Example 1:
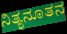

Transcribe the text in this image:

ನಿತ್ಯನೂತನ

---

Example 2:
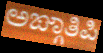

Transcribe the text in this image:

ಅಙ್ಗಾತಿಪಿ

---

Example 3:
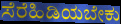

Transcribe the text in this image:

ಸೆರೆಹಿಡಿಯಬೇಕು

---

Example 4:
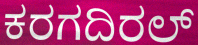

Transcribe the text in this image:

ಕರಗದಿರಲ್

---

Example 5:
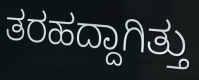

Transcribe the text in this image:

ತರಹದ್ದಾಗಿತ್ತು